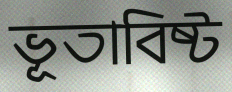
ভূতাবিষ্ট